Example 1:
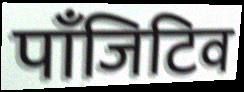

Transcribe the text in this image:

पाँजिटिव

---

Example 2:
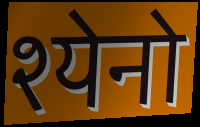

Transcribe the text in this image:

श्येनो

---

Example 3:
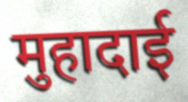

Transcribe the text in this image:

मुहादाई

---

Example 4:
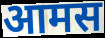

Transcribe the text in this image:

आमस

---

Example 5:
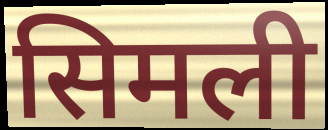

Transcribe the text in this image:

सिमली